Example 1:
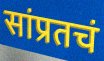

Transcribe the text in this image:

सांप्रतचं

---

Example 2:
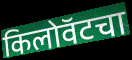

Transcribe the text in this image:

किलोवॅटचा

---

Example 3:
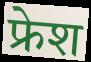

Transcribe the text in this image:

फ्रेश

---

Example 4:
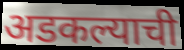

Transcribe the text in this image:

अडकल्याची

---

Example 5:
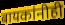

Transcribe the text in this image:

बायकांनीही